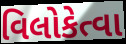
વિલોકેત્વા